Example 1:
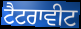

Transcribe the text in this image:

ਟੈਟਰਾਵੀਟ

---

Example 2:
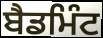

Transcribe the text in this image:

ਬੈਡਮਿੰਟ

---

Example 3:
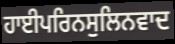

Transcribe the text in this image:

ਹਾਈਪਰਿਨਸੁਲਿਨਵਾਦ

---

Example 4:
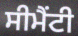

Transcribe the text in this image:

ਸੀਮੈਂਟੀ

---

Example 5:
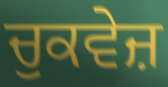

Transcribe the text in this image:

ਚੁਕਵੇਜ਼